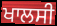
ਖਾਲਸੀ